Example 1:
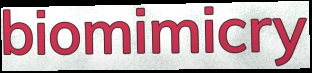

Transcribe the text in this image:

biomimicry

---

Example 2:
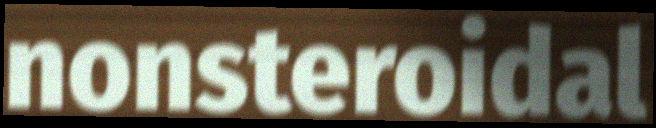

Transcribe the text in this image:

nonsteroidal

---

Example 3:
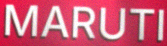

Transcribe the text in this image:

MARUTI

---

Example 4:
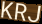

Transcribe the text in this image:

KRJ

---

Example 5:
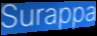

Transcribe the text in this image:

Surappa